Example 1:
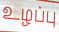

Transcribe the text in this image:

உழப்பு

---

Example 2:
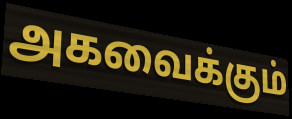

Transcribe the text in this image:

அகவைக்கும்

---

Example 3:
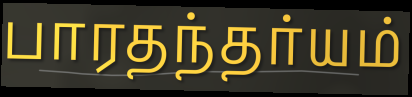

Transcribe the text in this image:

பாரதந்தர்யம்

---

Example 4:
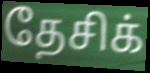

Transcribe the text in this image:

தேசிக்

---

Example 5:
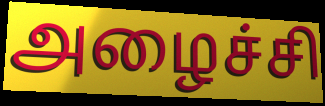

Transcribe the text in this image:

அழைச்சி